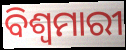
ବିଶ୍ୱମାରୀ